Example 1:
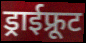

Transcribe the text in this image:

ड्राईफ्रूट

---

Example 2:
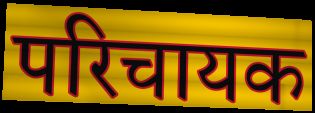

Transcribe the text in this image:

परिचायक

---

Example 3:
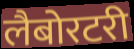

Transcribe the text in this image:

लैबोरटरी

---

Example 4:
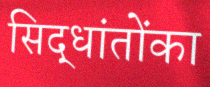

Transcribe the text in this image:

सिद्धांतोंका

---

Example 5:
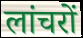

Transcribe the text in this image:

लांचरों